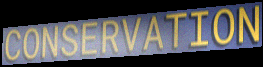
CONSERVATION